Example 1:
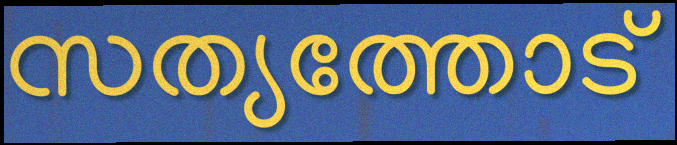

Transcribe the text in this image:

സത്യത്തോട്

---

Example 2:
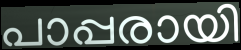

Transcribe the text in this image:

പാപ്പരായി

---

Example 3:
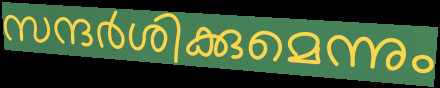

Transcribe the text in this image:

സന്ദർശിക്കുമെന്നും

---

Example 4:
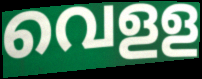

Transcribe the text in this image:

വെളള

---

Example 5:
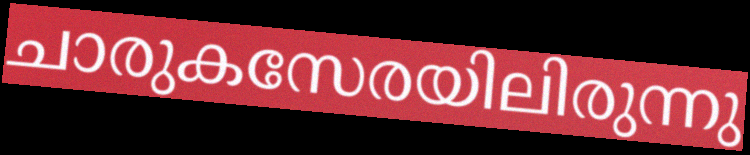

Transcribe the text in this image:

ചാരുകസേരയിലിരുന്നു